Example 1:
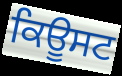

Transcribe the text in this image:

ਕਿਊਸਟ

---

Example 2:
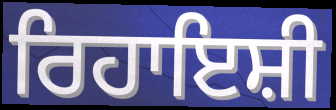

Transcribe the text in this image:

ਰਿਹਾਇਸ਼ੀ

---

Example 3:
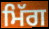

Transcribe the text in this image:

ਮਿੱਗ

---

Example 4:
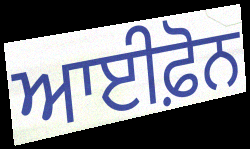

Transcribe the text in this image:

ਆਈਫ਼ੋਨ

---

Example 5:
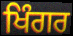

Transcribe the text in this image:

ਖਿੰਗਰ